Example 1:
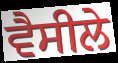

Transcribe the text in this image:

ਵੈਸੀਲੇ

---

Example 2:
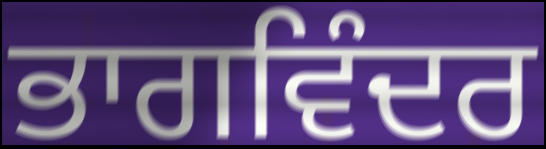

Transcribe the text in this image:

ਭਾਗਵਿੰਦਰ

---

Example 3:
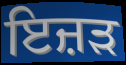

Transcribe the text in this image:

ਇਜ਼ੜ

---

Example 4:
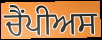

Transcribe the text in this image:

ਚੈਂਪੀਅਸ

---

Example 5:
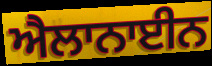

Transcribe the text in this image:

ਐਲਾਨਾਈਨ